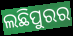
ଲଛିପୁରର